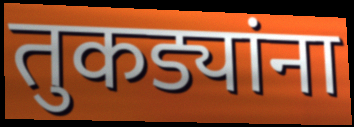
तुकड्यांना